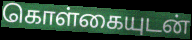
கொள்கையுடன்